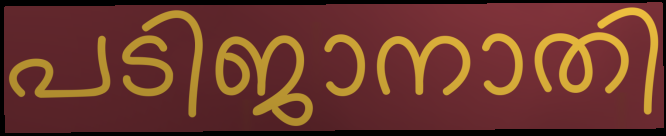
പടിജാനാതി